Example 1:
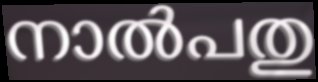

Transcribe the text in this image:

നാൽപതു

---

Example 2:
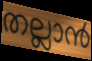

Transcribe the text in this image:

തല്ലാൻ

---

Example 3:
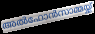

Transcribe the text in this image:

അൽഫോൻസാമ്മയ്ക്ക്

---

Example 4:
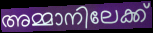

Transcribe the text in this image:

അമ്മാനിലേക്ക്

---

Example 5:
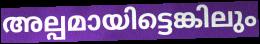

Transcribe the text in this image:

അല്പമായിട്ടെങ്കിലും